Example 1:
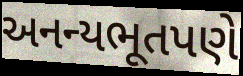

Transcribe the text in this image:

અનન્યભૂતપણે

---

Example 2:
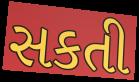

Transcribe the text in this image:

સકતી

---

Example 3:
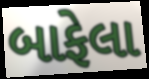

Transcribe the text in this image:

બાફેલા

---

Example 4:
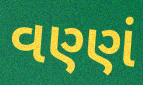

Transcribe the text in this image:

વણ્ણં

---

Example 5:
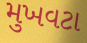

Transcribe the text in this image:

મુખવટા